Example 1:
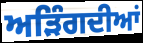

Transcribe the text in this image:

ਅੜਿੰਗਦੀਆਂ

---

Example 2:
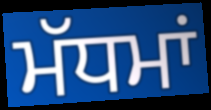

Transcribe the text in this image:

ਮੱਧਮਾਂ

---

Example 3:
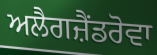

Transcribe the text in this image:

ਅਲੈਗਜ਼ੈਂਡਰੋਵਾ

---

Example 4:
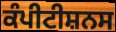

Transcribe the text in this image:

ਕੰਪੀਟੀਸ਼ਨਸ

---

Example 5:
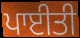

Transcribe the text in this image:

ਪਾਈਤੀ